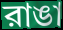
রাঙা